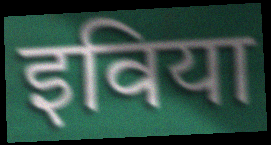
इविया